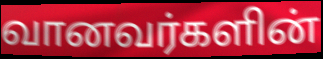
வானவர்களின்